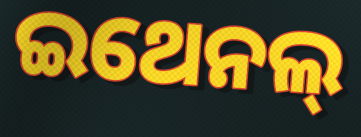
ଇଥେନଲ୍